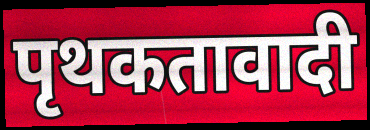
पृथकतावादी